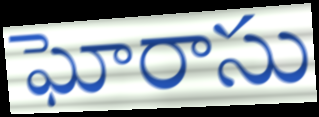
ఘోరాసు